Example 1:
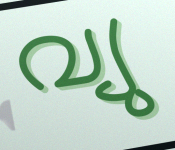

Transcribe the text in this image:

വ്യു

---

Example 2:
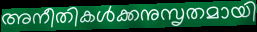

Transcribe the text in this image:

അനീതികൾക്കനുസൃതമായി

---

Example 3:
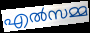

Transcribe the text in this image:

എൽസമ്മ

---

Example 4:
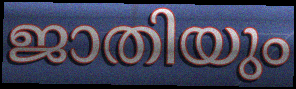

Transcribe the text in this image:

ജാതിയും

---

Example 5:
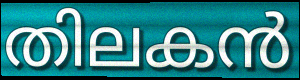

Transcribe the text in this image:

തിലകൻ